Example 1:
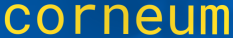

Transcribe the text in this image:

corneum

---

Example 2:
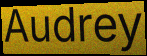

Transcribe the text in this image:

Audrey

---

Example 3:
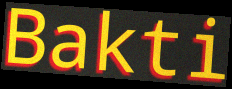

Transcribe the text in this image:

Bakti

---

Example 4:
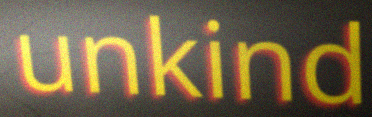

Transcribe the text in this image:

unkind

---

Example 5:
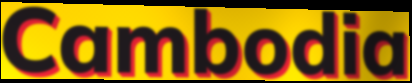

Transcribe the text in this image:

Cambodia